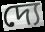
দ্যে